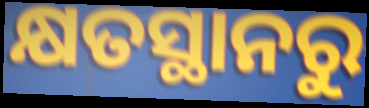
କ୍ଷତସ୍ଥାନରୁ